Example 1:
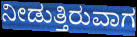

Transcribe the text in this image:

ನೀಡುತ್ತಿರುವಾಗ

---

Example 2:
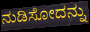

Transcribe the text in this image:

ನುಡಿಸೋದನ್ನು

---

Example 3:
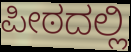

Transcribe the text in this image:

ಪೀಠದಲ್ಲಿ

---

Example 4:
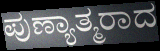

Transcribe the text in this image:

ಪುಣ್ಯಾತ್ಮರಾದ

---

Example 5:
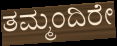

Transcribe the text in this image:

ತಮ್ಮಂದಿರೇ